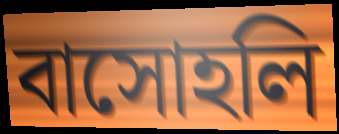
বাসোহলি